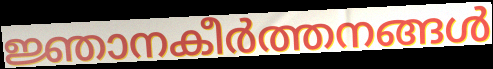
ജ്ഞാനകീർത്തനങ്ങൾ